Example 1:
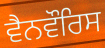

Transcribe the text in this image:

ਵੈਨਵੌਰਿਸ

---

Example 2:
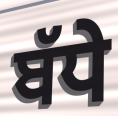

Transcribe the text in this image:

ਬੱਧੇ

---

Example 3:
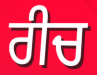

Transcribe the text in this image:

ਰੀਚ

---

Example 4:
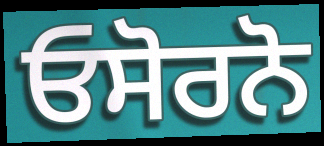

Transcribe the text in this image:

ਓਸੋਰਨੋ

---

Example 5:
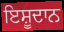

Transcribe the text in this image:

ਇਸ਼ੂਦਾਨ